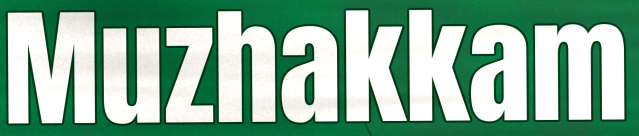
Muzhakkam